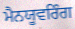
ਮੈਨਯੂਵਰਿੰਗ